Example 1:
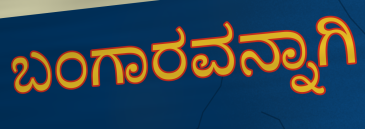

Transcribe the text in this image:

ಬಂಗಾರವನ್ನಾಗಿ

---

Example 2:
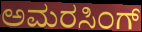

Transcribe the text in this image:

ಅಮರಸಿಂಗ್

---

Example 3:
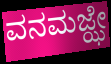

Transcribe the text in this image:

ವನಮಜ್ಝೇ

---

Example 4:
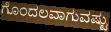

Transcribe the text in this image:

ಗೊಂದಲವಾಗುವಷ್ಟು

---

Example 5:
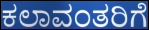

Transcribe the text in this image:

ಕಲಾವಂತರಿಗೆ